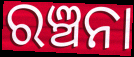
ରଞ୍ଚନା